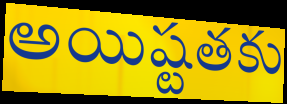
అయిష్టతకు